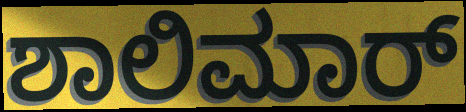
ಶಾಲಿಮಾರ್